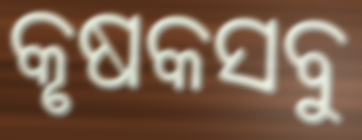
କୃଷକସବୁ